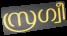
സ്രഗ്വീ